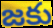
జకు